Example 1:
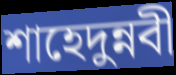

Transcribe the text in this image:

শাহেদুন্নবী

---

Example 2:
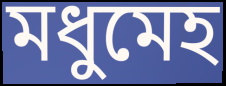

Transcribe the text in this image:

মধুমেহ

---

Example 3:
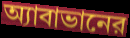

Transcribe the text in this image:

অ্যাবাভানের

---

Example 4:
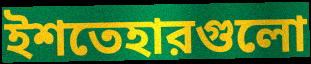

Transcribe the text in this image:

ইশতেহারগুলো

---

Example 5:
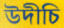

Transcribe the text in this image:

উদীচি